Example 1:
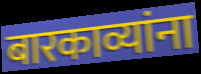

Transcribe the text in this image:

बारकाव्यांना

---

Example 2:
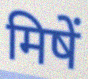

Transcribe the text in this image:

मिषें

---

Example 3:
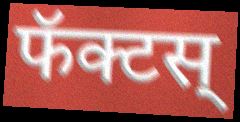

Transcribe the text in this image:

फॅक्टस्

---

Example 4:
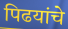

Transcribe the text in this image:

पिढयांचे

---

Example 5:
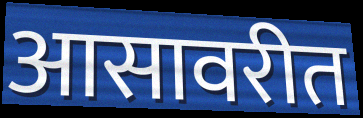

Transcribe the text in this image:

आसावरीत